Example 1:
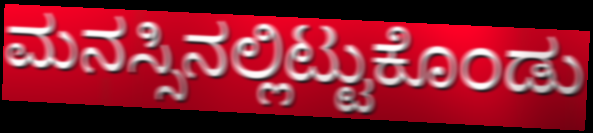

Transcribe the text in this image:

ಮನಸ್ಸಿನಲ್ಲಿಟ್ಟುಕೊಂಡು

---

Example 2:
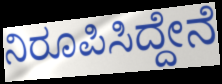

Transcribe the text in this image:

ನಿರೂಪಿಸಿದ್ದೇನೆ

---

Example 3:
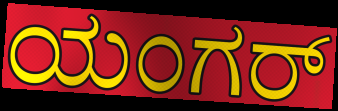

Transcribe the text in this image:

ಯಂಗರ್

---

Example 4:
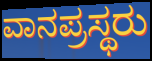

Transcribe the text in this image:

ವಾನಪ್ರಸ್ಥರು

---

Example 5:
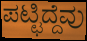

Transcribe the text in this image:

ಪಟ್ಟಿದ್ದೆವು